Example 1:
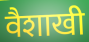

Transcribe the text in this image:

वैशाखी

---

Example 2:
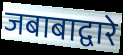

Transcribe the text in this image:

जबाबाद्वारे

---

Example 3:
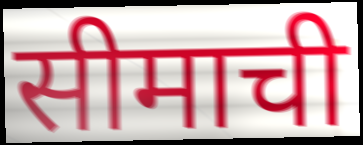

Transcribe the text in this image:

सीमाची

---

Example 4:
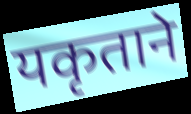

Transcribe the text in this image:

यकृताने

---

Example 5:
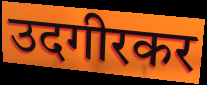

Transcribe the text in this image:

उदगीरकर